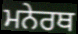
ਮਨੇਰਥ